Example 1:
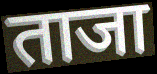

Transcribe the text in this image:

ताजा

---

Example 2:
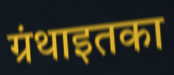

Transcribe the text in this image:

ग्रंथाइतका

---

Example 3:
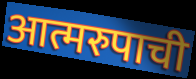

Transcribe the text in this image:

आत्मरुपाची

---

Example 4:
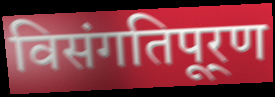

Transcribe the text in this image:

विसंगतिपूर्ण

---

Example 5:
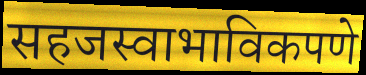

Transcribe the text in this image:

सहजस्वाभाविकपणे